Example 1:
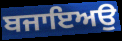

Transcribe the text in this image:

ਬਜਾਇਅਉ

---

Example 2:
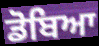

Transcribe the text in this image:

ਡੋਬਿਆ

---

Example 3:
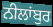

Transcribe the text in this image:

ਨੀਲਾਂਬੁਰ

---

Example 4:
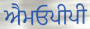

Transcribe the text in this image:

ਐਮਓਪੀਪੀ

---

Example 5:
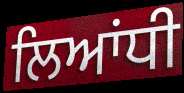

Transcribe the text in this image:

ਲਿਆਂਧੀ